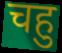
चहु